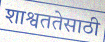
शाश्वततेसाठी